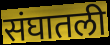
संघातली